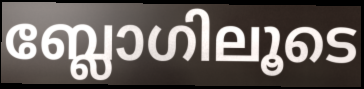
ബ്ലോഗിലൂടെ